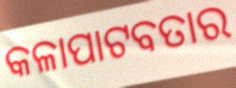
କଳାପାଟବତାର